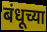
बंधूच्या